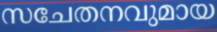
സചേതനവുമായ